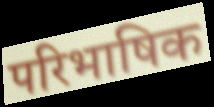
परिभाषिक